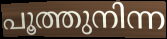
പൂത്തുനിന്ന